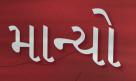
માન્યો